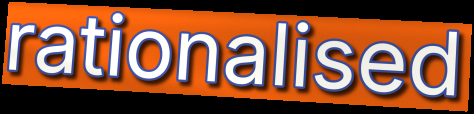
rationalised